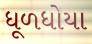
ધૂળધોયા